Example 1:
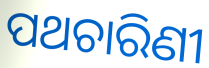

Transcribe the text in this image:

ପଥଚାରିଣୀ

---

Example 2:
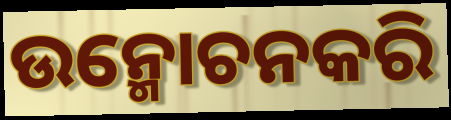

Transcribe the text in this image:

ଉନ୍ମୋଚନକରି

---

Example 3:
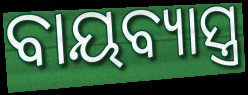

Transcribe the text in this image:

ବାୟବ୍ୟାସ୍ତ୍ର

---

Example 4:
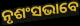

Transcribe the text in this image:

ନୃଶଂସଭାବେ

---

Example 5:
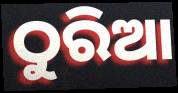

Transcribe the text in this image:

ଠୁରିଆ